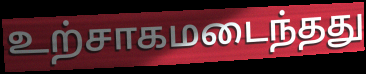
உற்சாகமடைந்தது